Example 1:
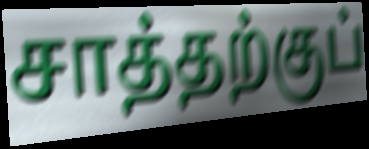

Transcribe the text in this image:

சாத்தற்குப்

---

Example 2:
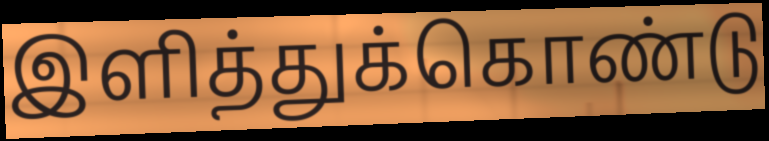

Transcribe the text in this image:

இளித்துக்கொண்டு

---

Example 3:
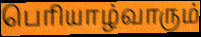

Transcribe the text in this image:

பெரியாழ்வாரும்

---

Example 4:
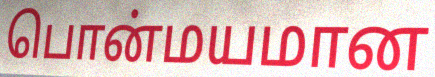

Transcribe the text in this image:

பொன்மயமான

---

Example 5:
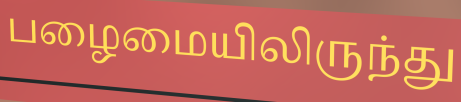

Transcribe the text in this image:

பழைமையிலிருந்து